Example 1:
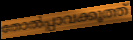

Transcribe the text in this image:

തോൽപ്പാവക്കൂത്ത്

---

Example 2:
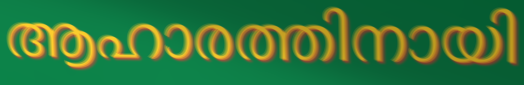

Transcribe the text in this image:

ആഹാരത്തിനായി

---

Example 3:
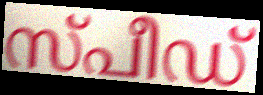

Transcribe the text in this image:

സ്പീഡ്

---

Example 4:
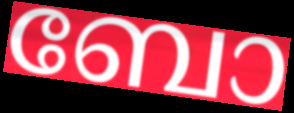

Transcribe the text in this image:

ബോ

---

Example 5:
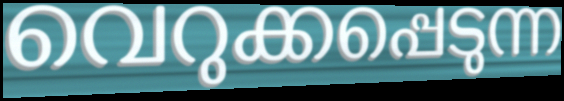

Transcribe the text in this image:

വെറുക്കപ്പെടുന്ന